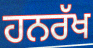
ਹਨਰੱਖ